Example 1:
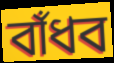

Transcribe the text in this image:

বাঁধব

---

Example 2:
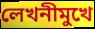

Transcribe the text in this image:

লেখনীমুখে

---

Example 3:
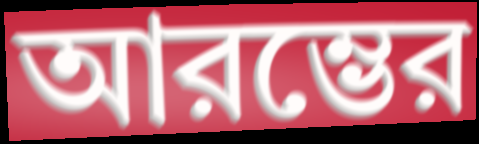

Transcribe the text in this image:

আরম্ভের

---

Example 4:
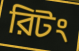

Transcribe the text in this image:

রিটং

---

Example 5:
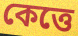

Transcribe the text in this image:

কেত্তে